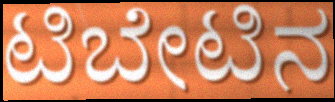
ಟಿಬೇಟಿನ